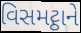
વિસમટ્ઠાને